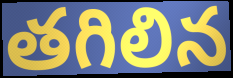
తగిలిన